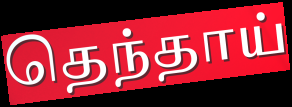
தெந்தாய்